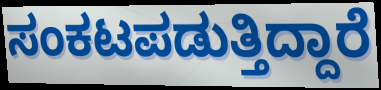
ಸಂಕಟಪಡುತ್ತಿದ್ದಾರೆ